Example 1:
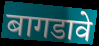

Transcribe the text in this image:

बागडावे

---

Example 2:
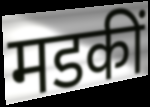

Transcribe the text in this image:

मडकीं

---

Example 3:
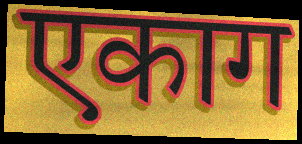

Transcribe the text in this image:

एकाग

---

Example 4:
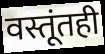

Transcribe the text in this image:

वस्तूंतही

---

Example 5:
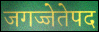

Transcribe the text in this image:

जगज्जेतेपद